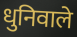
धुनिवाले